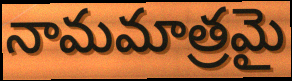
నామమాత్రమై